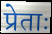
प्रेताः